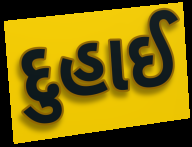
દુહાઈ